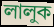
লালুক